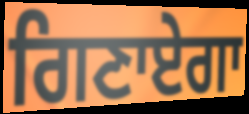
ਗਿਣਾਏਗਾ